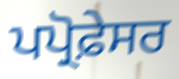
ਪਪ੍ਰੋਫ਼ੇਸਰ